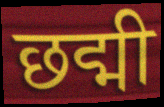
छद्मी